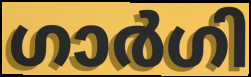
ഗാർഗി